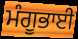
ਮੰਗੂਭਾਈ